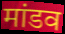
मांडव